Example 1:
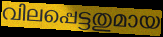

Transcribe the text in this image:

വിലപ്പെട്ടതുമായ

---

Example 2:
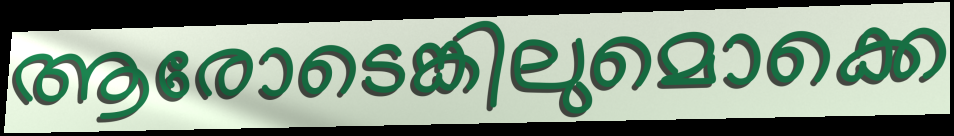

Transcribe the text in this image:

ആരോടെങ്കിലുമൊക്കെ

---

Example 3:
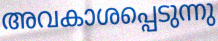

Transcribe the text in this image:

അവകാശപ്പെടുന്നു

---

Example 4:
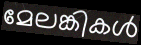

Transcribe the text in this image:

മേലങ്കികൾ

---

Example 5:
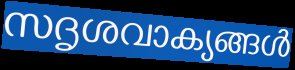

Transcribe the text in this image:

സദൃശവാക്യങ്ങൾ